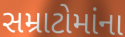
સમ્રાટોમાંના